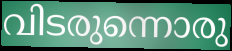
വിടരുന്നൊരു